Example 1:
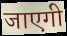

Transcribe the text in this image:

जाएगी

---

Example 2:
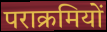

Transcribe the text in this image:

पराक्रमियों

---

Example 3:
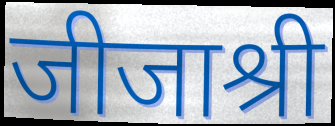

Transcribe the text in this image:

जीजाश्री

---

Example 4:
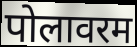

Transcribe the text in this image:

पोलावरम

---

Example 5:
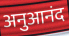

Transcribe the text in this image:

अनुआनंद